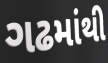
ગઢમાંથી